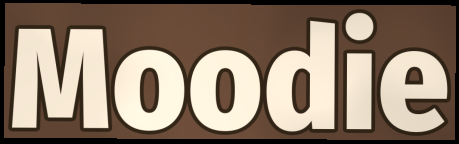
Moodie